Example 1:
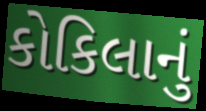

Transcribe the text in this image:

કોકિલાનું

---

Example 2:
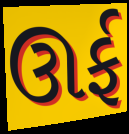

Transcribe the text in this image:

ઊર્ફ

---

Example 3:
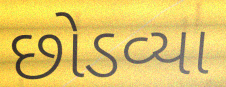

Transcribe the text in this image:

છોડવ્યા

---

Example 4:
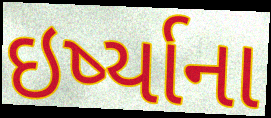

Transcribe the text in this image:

ઇર્ષ્યાના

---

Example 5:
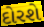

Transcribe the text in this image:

દોરશે